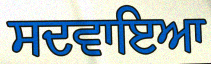
ਸਦਵਾਇਆ